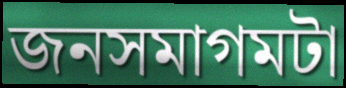
জনসমাগমটা